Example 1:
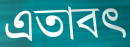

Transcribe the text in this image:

এতাবৎ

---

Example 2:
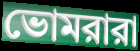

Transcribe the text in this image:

ভোমরারা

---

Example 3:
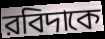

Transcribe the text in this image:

রবিদাকে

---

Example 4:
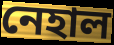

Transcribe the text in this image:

নেহাল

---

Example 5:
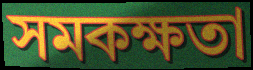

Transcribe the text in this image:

সমকক্ষতা